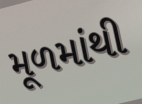
મૂળમાંથી